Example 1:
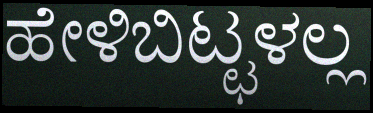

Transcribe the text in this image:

ಹೇಳಿಬಿಟ್ಟಳಲ್ಲ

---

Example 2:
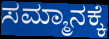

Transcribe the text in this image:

ಸಮ್ಮಾನಕ್ಕೆ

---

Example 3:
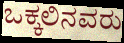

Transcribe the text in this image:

ಒಕ್ಕಲಿನವರು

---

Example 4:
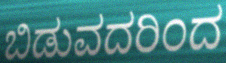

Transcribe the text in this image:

ಬಿಡುವದರಿಂದ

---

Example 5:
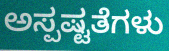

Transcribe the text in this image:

ಅಸ್ಪಷ್ಟತೆಗಳು